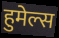
हुमेल्स